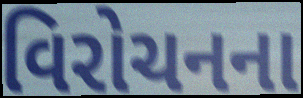
વિરોચનના